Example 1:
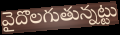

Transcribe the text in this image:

వైదొలగుతున్నట్టు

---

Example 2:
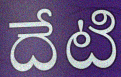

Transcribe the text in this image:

దేటి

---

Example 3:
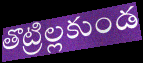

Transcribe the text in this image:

తొట్రిల్లకుండ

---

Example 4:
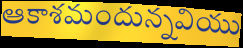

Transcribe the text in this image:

ఆకాశమందున్నవియు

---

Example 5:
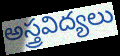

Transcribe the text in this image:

అస్త్రవిద్యలు